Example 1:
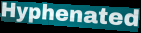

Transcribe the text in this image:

Hyphenated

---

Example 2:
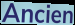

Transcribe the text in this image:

Ancien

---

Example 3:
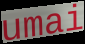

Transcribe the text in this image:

umai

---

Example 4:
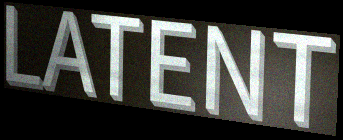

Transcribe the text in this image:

LATENT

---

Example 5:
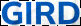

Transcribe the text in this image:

GIRD